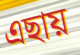
এছায়